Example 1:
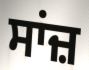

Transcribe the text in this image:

ਸਾਂਜ਼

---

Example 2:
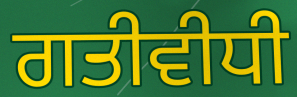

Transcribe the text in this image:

ਗਤੀਵੀਧੀ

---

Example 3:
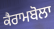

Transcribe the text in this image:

ਕੈਰਾਮਬੋਲਾ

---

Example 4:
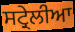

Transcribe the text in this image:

ਸਟ੍ਰੇਲੀਆ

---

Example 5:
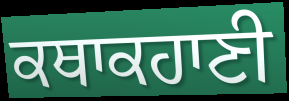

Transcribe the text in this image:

ਕਥਾਕਹਾਣੀ